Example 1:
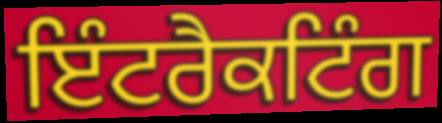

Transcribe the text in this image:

ਇੰਟਰੈਕਟਿੰਗ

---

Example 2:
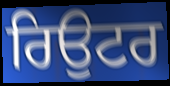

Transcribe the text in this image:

ਰਿਉਟਰ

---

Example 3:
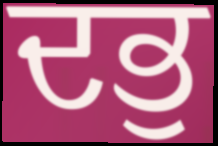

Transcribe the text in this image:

ਦਭੁ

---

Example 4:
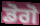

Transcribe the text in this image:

ਡੋਗੋ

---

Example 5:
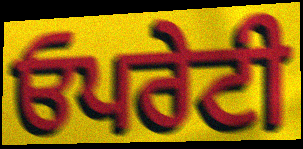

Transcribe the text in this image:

ਓਪਰੇਟੀ